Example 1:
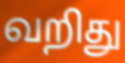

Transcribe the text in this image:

வறிது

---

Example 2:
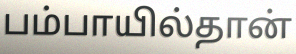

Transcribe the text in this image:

பம்பாயில்தான்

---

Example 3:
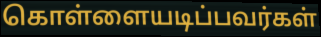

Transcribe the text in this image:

கொள்ளையடிப்பவர்கள்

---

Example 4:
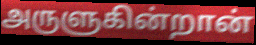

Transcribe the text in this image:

அருளுகின்றான்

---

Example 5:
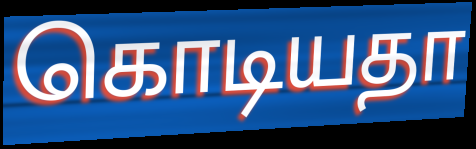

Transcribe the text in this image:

கொடியதா